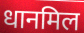
धानमिल